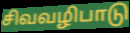
சிவவழிபாடு